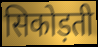
सिकोड़ती